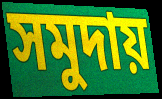
সমুদায়